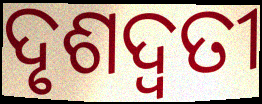
ଦୃଶଦ୍ୱତୀ